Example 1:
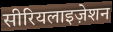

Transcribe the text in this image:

सीरियलाइज़ेशन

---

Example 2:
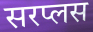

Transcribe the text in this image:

सरप्लस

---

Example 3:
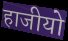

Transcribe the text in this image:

हाजीयो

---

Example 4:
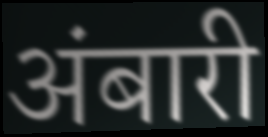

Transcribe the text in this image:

अंबारी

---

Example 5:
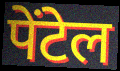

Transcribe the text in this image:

पेंटेल